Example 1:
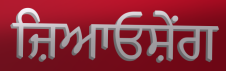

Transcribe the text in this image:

ਜ਼ਿਆਓਸ਼ੇਂਗ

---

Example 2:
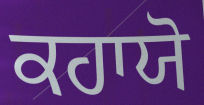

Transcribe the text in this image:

ਕਹਾਯੋ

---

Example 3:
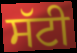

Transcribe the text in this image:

ਸੱਟੀ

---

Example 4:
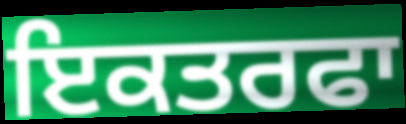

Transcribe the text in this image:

ਇਕਤਰਫਾ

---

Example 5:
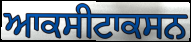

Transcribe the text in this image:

ਆਕਸੀਟਾਕਸਨ